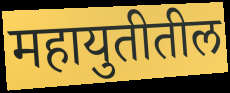
महायुतीतील